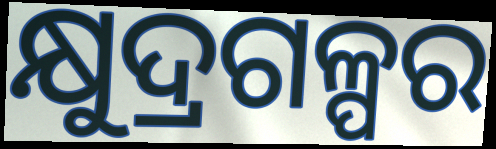
କ୍ଷୁଦ୍ରଗଳ୍ପର